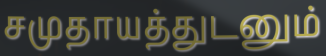
சமுதாயத்துடனும்